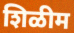
शिळीम